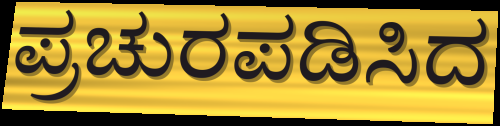
ಪ್ರಚುರಪಡಿಸಿದ